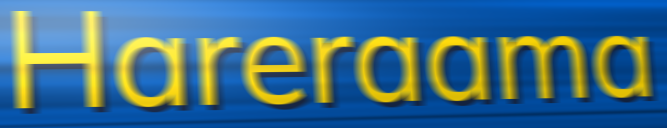
Hareraama